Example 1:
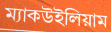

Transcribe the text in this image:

ম্যাকউইলিয়াম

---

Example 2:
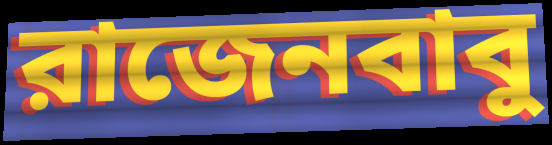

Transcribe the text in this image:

রাজেনবাবু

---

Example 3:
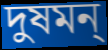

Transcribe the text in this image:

দুষমন্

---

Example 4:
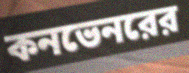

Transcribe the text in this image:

কনভেনরের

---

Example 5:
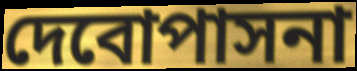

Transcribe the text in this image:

দেবোপাসনা